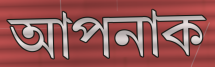
আপনাক